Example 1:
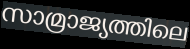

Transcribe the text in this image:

സാമ്രാജ്യത്തിലെ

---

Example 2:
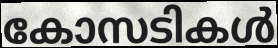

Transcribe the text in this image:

കോസടികൾ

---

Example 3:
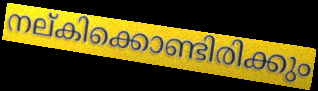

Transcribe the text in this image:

നല്കിക്കൊണ്ടിരിക്കും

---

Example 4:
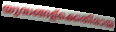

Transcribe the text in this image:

യുദ്ധങ്ങള്ക്കെതിരായ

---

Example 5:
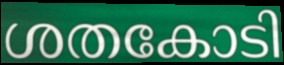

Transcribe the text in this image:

ശതകോടി